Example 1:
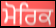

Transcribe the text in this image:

ਮੋਰਿਕ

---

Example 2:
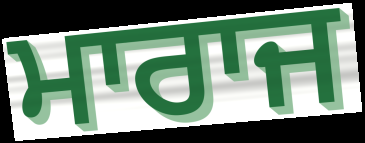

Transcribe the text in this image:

ਮਾਰਾਜ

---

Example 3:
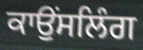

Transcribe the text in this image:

ਕਾਉੰਸਲਿੰਗ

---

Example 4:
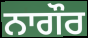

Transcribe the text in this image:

ਨਾਗੌਰ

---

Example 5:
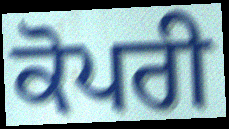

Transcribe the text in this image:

ਕੋਪਰੀ